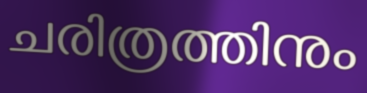
ചരിത്രത്തിനും